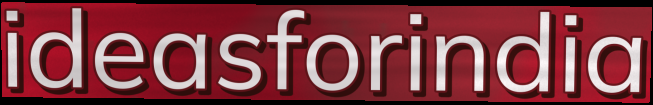
ideasforindia